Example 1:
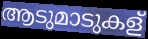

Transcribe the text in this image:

ആടുമാടുകള്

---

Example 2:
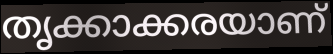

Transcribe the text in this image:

തൃക്കാക്കരയാണ്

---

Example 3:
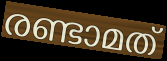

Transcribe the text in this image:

രണ്ടാമത്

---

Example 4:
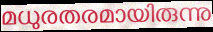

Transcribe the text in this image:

മധുരതരമായിരുന്നു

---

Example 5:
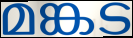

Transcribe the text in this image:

മങ്കട